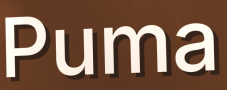
Puma